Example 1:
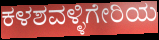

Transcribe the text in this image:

ಕಳಶವಳ್ಳಿಗೇರಿಯ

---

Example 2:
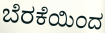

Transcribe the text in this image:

ಬೆರಕೆಯಿಂದ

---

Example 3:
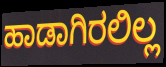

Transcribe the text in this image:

ಹಾಡಾಗಿರಲಿಲ್ಲ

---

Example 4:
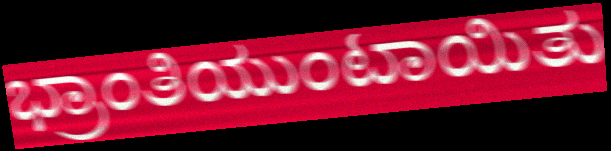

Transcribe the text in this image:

ಭ್ರಾಂತಿಯುಂಟಾಯಿತು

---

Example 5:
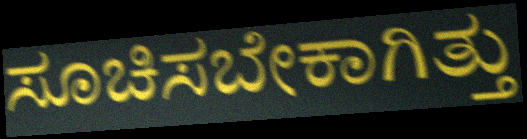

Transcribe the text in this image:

ಸೂಚಿಸಬೇಕಾಗಿತ್ತು